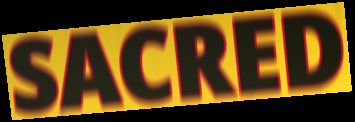
SACRED